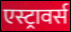
एस्ट्रावर्स